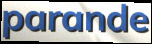
parande